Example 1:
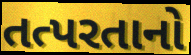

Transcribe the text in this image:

તત્પરતાનો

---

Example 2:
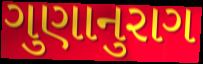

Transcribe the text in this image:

ગુણાનુરાગ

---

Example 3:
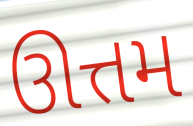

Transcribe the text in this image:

ઊત્તમ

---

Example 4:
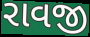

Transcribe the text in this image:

રાવજી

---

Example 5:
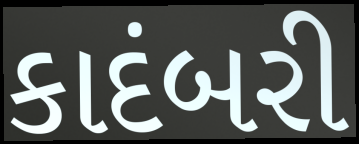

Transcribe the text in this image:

કાદંબરી